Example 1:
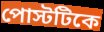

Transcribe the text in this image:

পোস্টটিকে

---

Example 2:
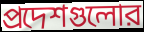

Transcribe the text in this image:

প্রদেশগুলোর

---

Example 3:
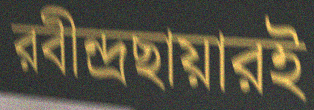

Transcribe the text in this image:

রবীন্দ্রছায়ারই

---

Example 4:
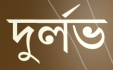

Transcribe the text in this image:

দুর্লভ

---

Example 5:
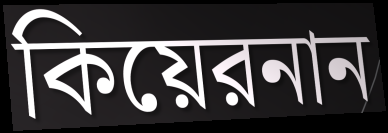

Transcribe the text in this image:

কিয়েরনান